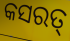
କସରତ୍